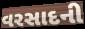
વરસાદની